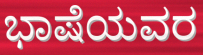
ಭಾಷೆಯವರ